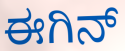
ಈಗಿನ್